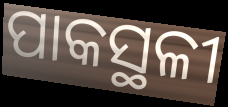
ପାକସ୍ଥଳୀ